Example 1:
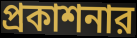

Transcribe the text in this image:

প্রকাশনার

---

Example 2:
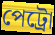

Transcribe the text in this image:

পেট্রো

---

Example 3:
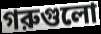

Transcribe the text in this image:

গরুগুলো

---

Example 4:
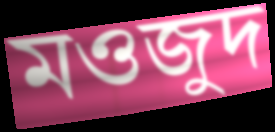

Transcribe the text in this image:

মওজুদ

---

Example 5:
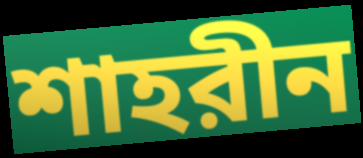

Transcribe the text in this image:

শাহরীন